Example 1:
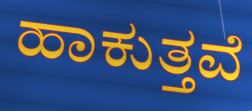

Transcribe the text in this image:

ಹಾಕುತ್ತವೆ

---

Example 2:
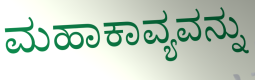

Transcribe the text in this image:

ಮಹಾಕಾವ್ಯವನ್ನು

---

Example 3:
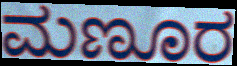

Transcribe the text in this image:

ಮಣೂರ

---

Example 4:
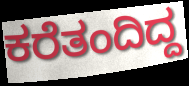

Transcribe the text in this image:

ಕರೆತಂದಿದ್ದ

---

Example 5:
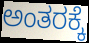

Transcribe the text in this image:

ಅಂತರಕ್ಕೆ